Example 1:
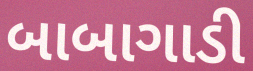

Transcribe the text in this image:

બાબાગાડી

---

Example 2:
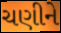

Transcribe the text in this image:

ચણીને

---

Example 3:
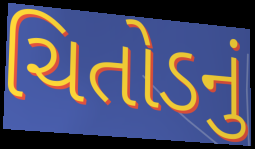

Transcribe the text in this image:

ચિતોડનું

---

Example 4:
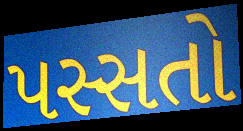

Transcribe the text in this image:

પસ્સતો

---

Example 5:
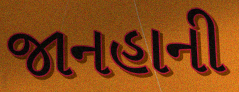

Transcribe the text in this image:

જાનહાની